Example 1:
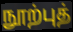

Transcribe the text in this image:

நூற்புத்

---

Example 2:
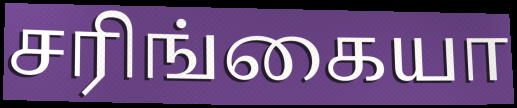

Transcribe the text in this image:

சரிங்கையா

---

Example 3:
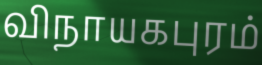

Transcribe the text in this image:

விநாயகபுரம்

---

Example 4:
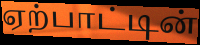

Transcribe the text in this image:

ஏற்பாட்டின்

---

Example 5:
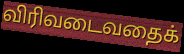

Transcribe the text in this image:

விரிவடைவதைக்